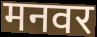
मनवर